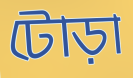
টোড়া